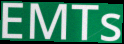
EMTs